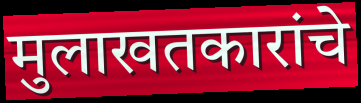
मुलाखतकारांचे